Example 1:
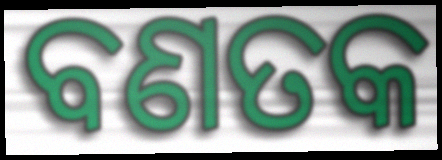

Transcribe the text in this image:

ବଣତକ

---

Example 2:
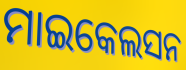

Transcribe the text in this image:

ମାଇକେଲସନ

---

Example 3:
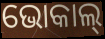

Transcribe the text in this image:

ଭୋକାଲ୍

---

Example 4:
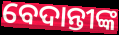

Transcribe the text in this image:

ବେଦାନ୍ତୀଙ୍କ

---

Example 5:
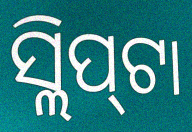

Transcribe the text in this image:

ସ୍ଲିପ୍‌ଟା